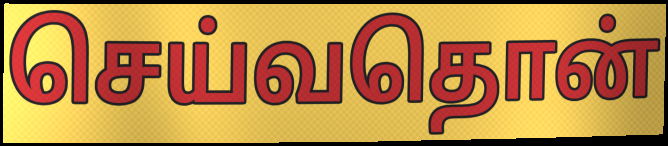
செய்வதொன்